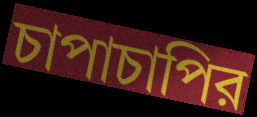
চাপাচাপির